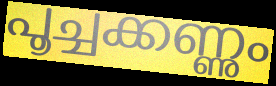
പൂച്ചക്കണ്ണും